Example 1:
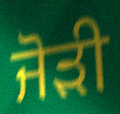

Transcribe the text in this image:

ਜੋਡ਼ੀ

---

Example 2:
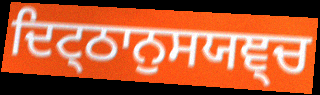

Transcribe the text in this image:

ਦਿਟ੍ਠਾਨੁਸਯਞ੍ਚ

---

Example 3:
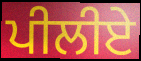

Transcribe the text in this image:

ਪੀਲੀਏ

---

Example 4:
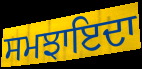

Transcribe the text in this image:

ਸਮਝਾਇਦਾ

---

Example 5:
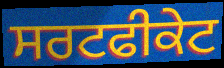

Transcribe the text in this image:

ਸਰਟਫੀਕੇਟ